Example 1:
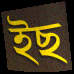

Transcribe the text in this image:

ইছ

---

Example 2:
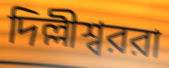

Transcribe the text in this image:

দিল্লীশ্বররা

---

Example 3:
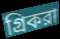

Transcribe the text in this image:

গ্রিকরা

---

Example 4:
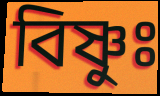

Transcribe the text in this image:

বিষ্ণুঃ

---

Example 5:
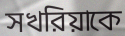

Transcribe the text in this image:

সখরিয়াকে